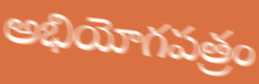
అభియోగపత్రం